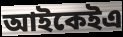
আইকেইএ